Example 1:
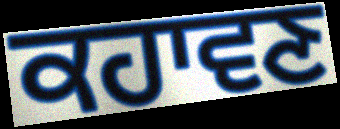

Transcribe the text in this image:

ਕਹਾਵਣ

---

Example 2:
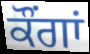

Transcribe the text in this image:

ਕੌਂਗਾਂ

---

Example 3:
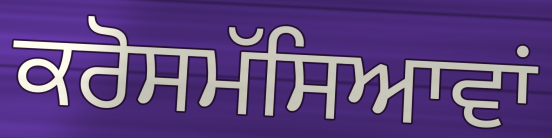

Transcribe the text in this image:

ਕਰੋਸਮੱਸਿਆਵਾਂ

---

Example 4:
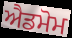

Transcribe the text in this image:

ਐਡਮੋਮ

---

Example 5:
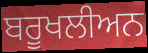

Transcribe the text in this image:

ਬਰੂਖਲੀਅਨ